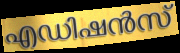
എഡിഷൻസ്